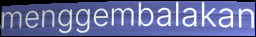
menggembalakan